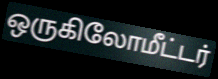
ஒருகிலோமீட்டர்